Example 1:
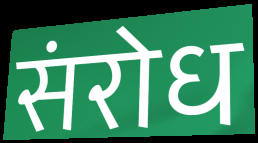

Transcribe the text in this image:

संरोध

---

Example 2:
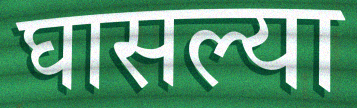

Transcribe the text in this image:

घासल्या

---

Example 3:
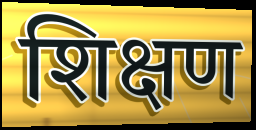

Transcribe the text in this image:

शिक्षण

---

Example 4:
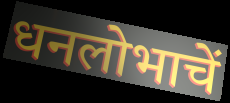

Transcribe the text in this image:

धनलोभाचें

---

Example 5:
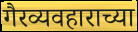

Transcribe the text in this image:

गैरव्यवहाराच्या